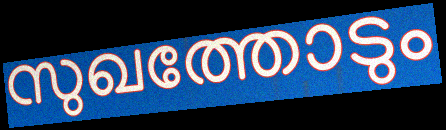
സുഖത്തോടും